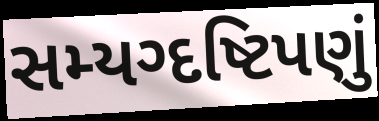
સમ્યગ્દષ્ટિપણું